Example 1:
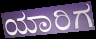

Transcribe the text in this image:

ಯಾರಿಗ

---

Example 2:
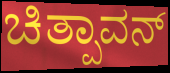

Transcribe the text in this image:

ಚಿತ್ಪಾವನ್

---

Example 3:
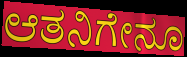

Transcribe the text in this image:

ಆತನಿಗೇನೂ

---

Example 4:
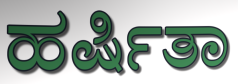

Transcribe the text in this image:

ಹರ್ಷಿತಾ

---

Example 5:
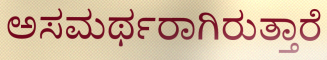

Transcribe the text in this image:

ಅಸಮರ್ಥರಾಗಿರುತ್ತಾರೆ